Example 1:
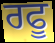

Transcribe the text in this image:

ਰਫੂ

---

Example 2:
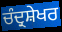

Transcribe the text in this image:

ਚੰਦ੍ਰਸ਼ੇਖਰ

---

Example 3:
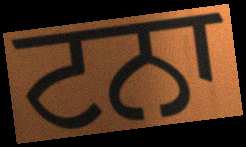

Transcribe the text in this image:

ਟਨਾ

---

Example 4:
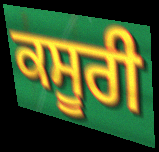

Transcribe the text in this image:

ਕਸੂਰੀ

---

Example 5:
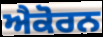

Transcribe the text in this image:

ਐਕੋਰਨ